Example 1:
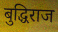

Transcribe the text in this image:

बुद्धिराज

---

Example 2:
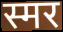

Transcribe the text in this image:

स्मर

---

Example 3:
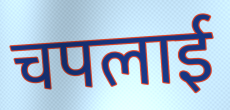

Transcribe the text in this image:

चपलाई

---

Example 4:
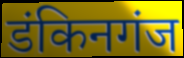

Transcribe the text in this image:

डंकिनगंज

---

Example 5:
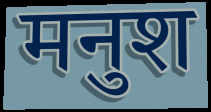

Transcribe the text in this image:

मनुश